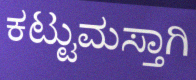
ಕಟ್ಟುಮಸ್ತಾಗಿ